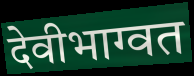
देवीभाग्वत